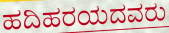
ಹದಿಹರಯದವರು